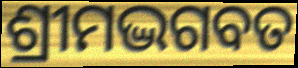
ଶ୍ରୀମଦ୍ଭଗବତ